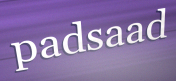
padsaad